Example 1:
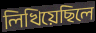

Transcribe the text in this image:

লিখিয়েছিলে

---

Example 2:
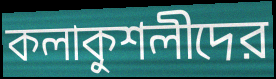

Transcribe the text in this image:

কলাকুশলীদের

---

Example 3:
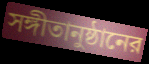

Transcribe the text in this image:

সঙ্গীতানুষ্ঠানের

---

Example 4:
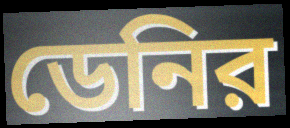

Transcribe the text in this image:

ডেনির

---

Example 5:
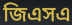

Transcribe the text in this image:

জিএসএ